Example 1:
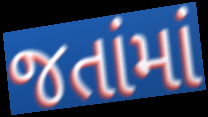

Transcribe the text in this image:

જતાંમાં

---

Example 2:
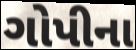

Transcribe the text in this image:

ગોપીના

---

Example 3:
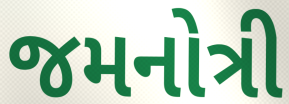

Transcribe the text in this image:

જમનોત્રી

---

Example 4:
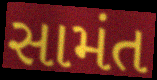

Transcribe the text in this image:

સામંત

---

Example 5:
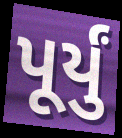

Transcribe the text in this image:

પૂર્યું